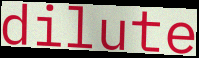
dilute